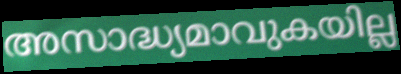
അസാദ്ധ്യമാവുകയില്ല